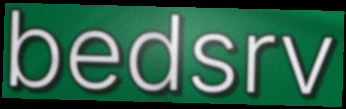
bedsrv